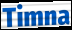
Timna